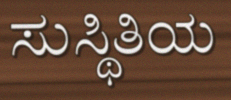
ಸುಸ್ಥಿತಿಯ